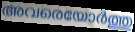
അവരെയോർത്തു